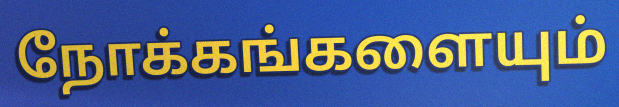
நோக்கங்களையும்